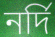
নর্দি